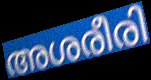
അശരീരി